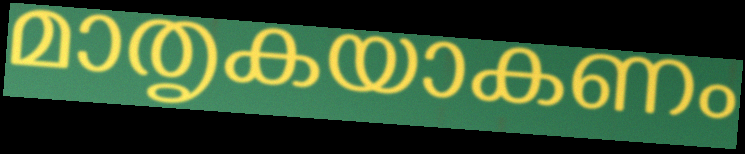
മാതൃകയാകണം